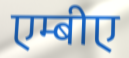
एम्बीए